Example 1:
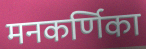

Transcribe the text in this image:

मनकर्णिका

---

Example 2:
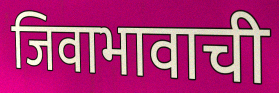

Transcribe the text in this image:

जिवाभावाची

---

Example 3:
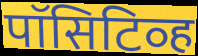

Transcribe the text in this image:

पॉसिटिव्ह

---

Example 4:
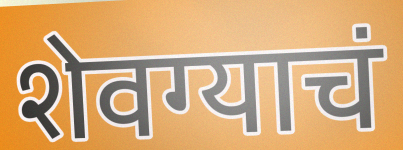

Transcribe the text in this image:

शेवग्याचं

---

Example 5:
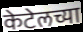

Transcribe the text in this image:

केटेलच्या